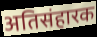
अतिसंहारक